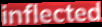
inflected